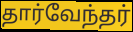
தார்வேந்தர்